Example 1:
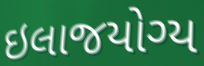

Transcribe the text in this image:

ઇલાજયોગ્ય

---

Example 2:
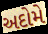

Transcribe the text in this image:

અદોમે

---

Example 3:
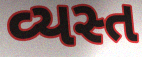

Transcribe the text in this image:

વ્યસ્ત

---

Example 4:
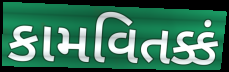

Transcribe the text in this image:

કામવિતક્કં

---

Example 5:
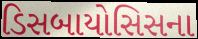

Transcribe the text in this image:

ડિસબાયોસિસના